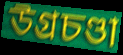
উগ্রচণ্ডা